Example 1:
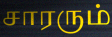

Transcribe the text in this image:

சாரரும்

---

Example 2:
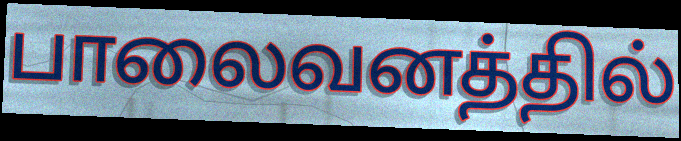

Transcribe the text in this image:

பாலைவனத்தில்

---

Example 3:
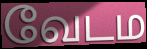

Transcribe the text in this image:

வேடம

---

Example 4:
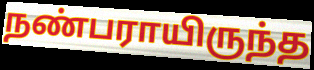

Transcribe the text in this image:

நண்பராயிருந்த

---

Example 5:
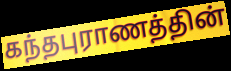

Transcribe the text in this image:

கந்தபுராணத்தின்